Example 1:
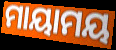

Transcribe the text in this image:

ମାୟାମୟ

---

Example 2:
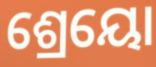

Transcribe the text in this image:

ଶ୍ରେୟୋ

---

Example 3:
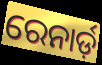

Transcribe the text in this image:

ରେନାର୍ଡ଼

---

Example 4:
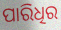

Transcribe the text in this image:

ପାରିଧିର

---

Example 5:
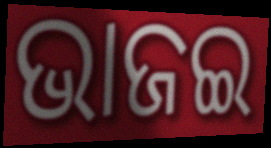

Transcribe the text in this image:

ଭାଜଇ